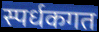
स्पर्धकगत